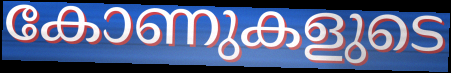
കോണുകളുടെ